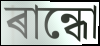
ৰান্ধো